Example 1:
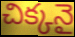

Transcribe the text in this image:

చిక్కనై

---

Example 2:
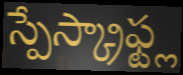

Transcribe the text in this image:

స్పేస్క్రాఫ్ట్ల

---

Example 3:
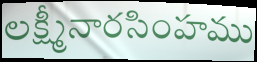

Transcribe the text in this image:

లక్ష్మీనారసింహము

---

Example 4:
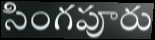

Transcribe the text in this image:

సింగపూరు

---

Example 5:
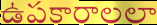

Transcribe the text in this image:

ఉపకారాలలా